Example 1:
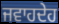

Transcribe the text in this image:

ਜਵਾਹਦੇਹ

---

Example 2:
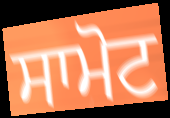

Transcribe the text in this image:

ਸਾਮੋਟ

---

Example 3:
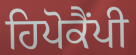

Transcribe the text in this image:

ਹਿਪੋਕੈਂਪੀ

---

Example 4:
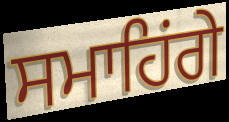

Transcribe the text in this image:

ਸਮਾਹਿਂਗੇ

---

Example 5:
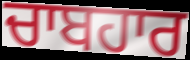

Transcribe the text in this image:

ਚਾਬਹਾਰ